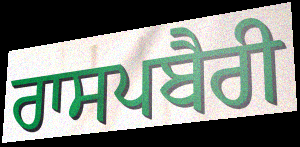
ਰਾਸਪਬੈਰੀ